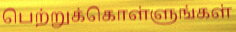
பெற்றுக்கொள்ளுங்கள்